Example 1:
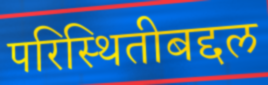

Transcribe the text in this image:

परिस्थितीबद्दल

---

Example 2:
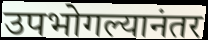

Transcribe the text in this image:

उपभोगल्यानंतर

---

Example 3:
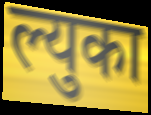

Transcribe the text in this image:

ल्युका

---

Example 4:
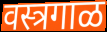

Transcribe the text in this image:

वस्त्रगाळ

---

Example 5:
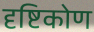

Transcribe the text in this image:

दृष्टिकोण